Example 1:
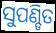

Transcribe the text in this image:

ସୁପଣ୍ଡିତ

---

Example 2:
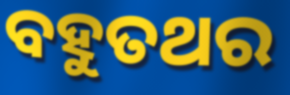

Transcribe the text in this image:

ବହୁତଥର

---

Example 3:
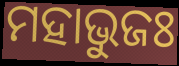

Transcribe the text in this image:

ମହାଭୁଜଃ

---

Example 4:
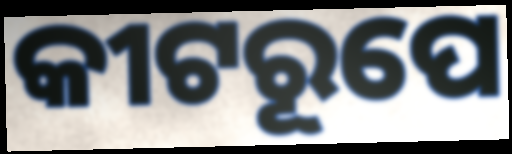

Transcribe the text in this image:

କୀଟରୂପେ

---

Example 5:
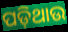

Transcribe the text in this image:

ପଡ଼ିଥାଉ